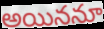
అయిననూ